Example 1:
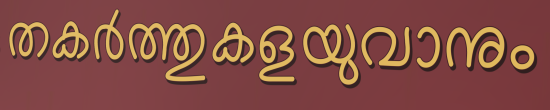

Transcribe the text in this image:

തകർത്തുകളയുവാനും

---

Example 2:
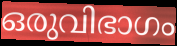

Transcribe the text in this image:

ഒരുവിഭാഗം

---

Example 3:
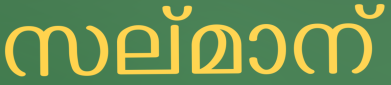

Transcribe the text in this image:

സല്മാന്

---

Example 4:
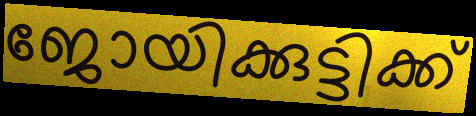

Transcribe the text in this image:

ജോയിക്കുട്ടിക്ക്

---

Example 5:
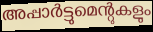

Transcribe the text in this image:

അപ്പാർട്ടുമെന്റുകളും